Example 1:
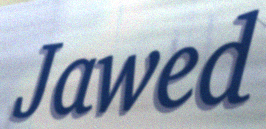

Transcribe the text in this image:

Jawed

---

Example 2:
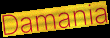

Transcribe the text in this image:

Damania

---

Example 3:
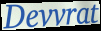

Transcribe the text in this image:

Devvrat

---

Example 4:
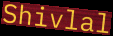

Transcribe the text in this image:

Shivlal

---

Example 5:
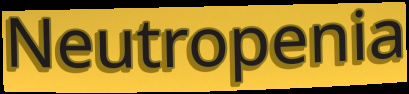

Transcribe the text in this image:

Neutropenia